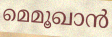
മെമൂഖാൻ